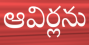
ఆవిర్లను